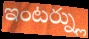
ఇంటర్న్లు